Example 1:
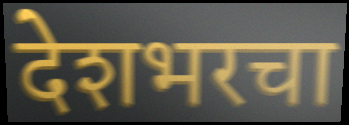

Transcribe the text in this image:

देशभरचा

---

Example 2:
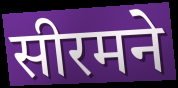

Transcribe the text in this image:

सीरमने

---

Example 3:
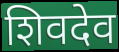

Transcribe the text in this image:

शिवदेव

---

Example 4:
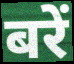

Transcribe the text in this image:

बरें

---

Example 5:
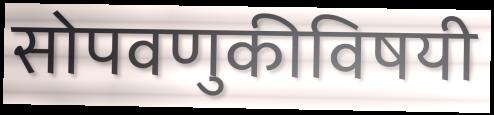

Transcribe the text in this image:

सोपवणुकीविषयी